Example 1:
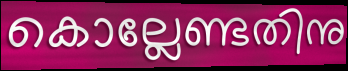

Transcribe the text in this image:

കൊല്ലേണ്ടതിനു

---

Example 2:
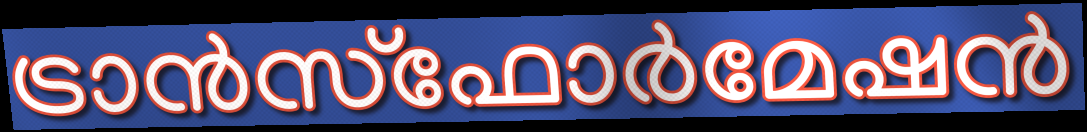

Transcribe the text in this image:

ട്രാൻസ്ഫോർമേഷൻ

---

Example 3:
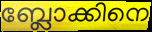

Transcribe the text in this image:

ബ്ലോക്കിനെ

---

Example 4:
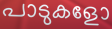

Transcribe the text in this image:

പാടുകളോ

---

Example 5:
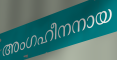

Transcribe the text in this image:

അംഗഹീനനായ